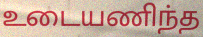
உடையணிந்த